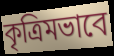
কৃত্রিমভাবে